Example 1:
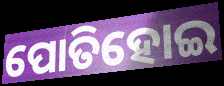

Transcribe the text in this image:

ପୋତିହୋଇ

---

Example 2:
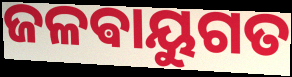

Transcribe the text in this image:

ଜଳଵାୟୁଗତ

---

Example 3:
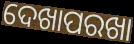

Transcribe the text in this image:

ଦେଖାପରଖା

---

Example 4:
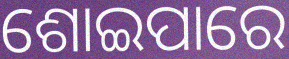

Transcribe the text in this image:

ଶୋଇପାରେ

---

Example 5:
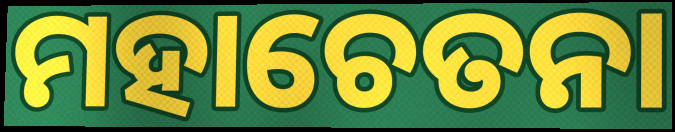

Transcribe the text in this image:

ମହାଚେତନା